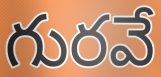
గురవే